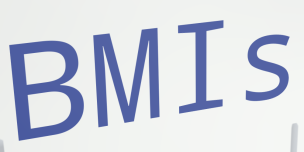
BMIs